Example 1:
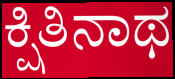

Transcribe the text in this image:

ಕ್ಷಿತಿನಾಥ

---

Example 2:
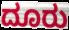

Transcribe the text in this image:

ದೂರು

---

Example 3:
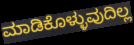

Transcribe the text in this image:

ಮಾಡಿಕೊಳ್ಳುವುದಿಲ್ಲ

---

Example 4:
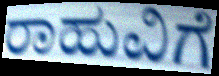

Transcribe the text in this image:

ರಾಹುವಿಗೆ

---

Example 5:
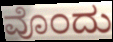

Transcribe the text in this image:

ವೊಂದು